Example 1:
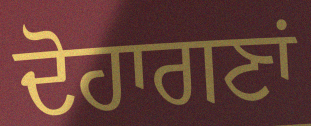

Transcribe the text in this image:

ਦੋਹਾਗਣਾਂ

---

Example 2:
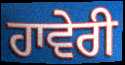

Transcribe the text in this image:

ਹਾਵੇਰੀ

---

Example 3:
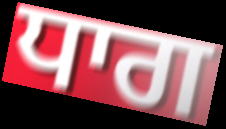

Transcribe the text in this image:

ਧਾਗ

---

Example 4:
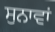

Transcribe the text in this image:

ਸੁਨਾਵਾਂ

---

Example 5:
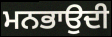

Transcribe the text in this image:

ਮਨਭਾਉਦੀ